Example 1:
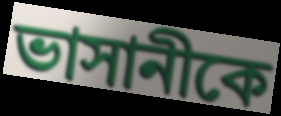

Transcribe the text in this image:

ভাসানীকে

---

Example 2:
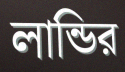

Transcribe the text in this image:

লান্ডির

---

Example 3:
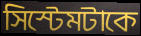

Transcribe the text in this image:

সিস্টেমটাকে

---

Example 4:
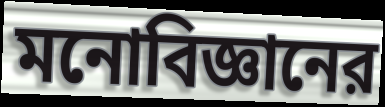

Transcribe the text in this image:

মনোবিজ্ঞানের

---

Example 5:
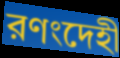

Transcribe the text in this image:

রণংদেহী